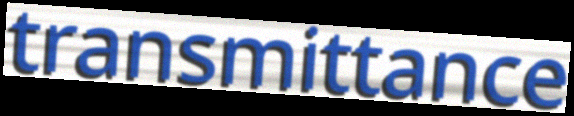
transmittance